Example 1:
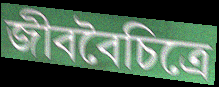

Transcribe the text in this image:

জীববৈচিত্রে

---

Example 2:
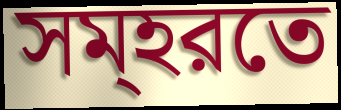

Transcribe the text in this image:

সম্হরতে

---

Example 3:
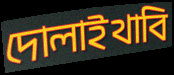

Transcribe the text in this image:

দোলাইথাবি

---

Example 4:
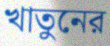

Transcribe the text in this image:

খাতুনের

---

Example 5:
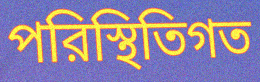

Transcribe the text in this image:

পরিস্থিতিগত